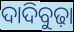
ଦାଦିବୁଢ଼ା